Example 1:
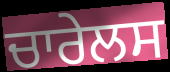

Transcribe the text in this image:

ਚਾਰੇਲਸ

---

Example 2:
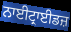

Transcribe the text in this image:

ਨਾਈਟ੍ਰਾਈਡਜ਼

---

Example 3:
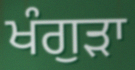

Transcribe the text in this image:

ਖੰਗੁੜਾ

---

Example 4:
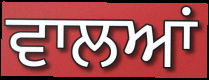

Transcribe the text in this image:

ਵਾਲਆਂ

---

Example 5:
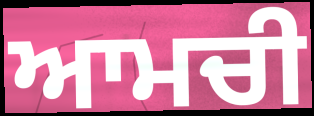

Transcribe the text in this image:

ਆਮਚੀ